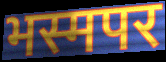
भस्मपर